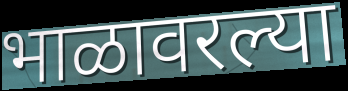
भाळावरल्या